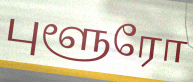
புளூரோ